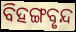
ବିହଙ୍ଗବୃନ୍ଦ